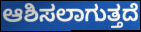
ಆಶಿಸಲಾಗುತ್ತದೆ